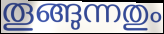
തൂങ്ങുന്നതും